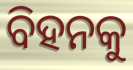
ବିହନକୁ